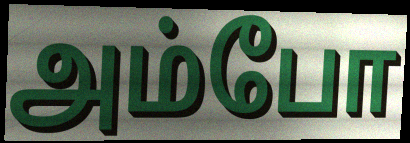
அம்போ